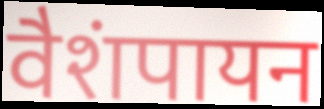
वैशंपायन